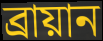
ব্রায়ান